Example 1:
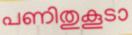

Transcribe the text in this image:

പണിതുകൂടാ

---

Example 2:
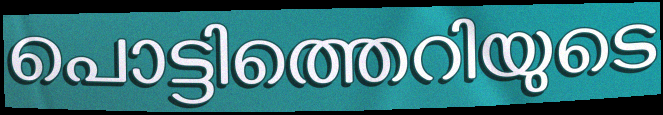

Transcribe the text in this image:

പൊട്ടിത്തെറിയുടെ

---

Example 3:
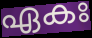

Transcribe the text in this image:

ഏകഃ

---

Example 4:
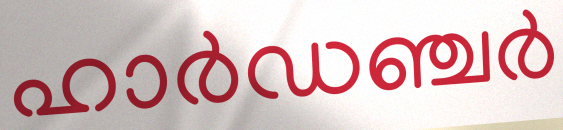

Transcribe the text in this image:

ഹാർഡഞ്ചർ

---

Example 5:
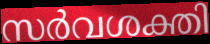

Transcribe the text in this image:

സർവശക്തി